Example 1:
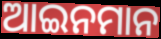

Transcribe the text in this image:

ଆଇନମାନ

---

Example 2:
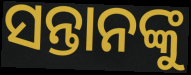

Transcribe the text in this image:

ସନ୍ତାନଙ୍କୁ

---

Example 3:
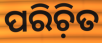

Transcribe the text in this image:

ପରିଚ଼ିତ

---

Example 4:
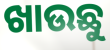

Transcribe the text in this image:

ଖାଉଛୁ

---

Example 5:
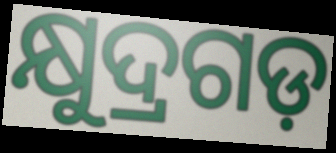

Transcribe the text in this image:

କ୍ଷୁଦ୍ରଗଡ଼